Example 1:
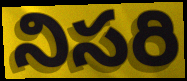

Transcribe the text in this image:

నిసరి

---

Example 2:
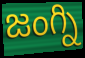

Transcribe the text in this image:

జంగ్ని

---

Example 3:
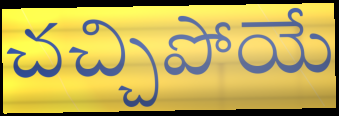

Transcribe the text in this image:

చచ్చిపోయే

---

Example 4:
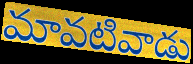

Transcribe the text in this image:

మావటివాడు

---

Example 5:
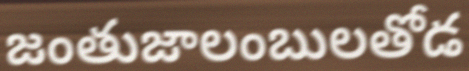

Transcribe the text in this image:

జంతుజాలంబులతోడ